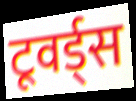
टूवर्ड्स